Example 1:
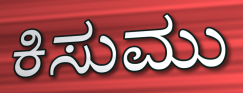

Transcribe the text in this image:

ಕಿಸುಮು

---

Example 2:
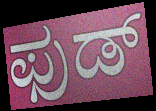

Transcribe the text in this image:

ಫುಡ್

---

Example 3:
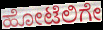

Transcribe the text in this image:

ಹೋಟೆಲಿಗೇ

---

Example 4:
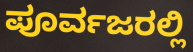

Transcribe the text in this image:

ಪೂರ್ವಜರಲ್ಲಿ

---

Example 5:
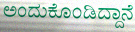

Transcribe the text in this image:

ಅಂದುಕೊಂಡಿದ್ದಾನೆ